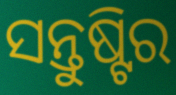
ସନ୍ତୁଷ୍ଟିର